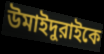
উমাইদুরাইকে